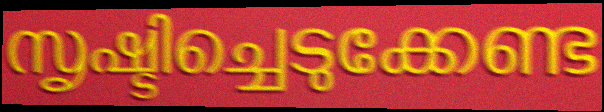
സൃഷ്ടിച്ചെടുക്കേണ്ട